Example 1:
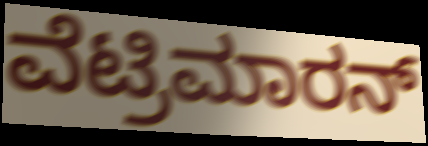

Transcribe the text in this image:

ವೆಟ್ರಿಮಾರನ್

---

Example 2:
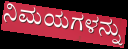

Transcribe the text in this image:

ನಿಮಯಗಳನ್ನು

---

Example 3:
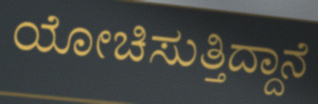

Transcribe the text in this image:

ಯೋಚಿಸುತ್ತಿದ್ದಾನೆ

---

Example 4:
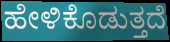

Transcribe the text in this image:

ಹೇಳಿಕೊಡುತ್ತದೆ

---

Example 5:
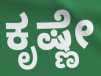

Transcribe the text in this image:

ಕೃಷ್ಣೇ